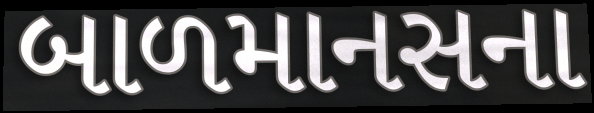
બાળમાનસના